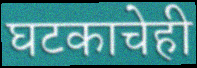
घटकाचेही